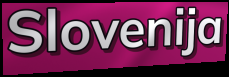
Slovenija